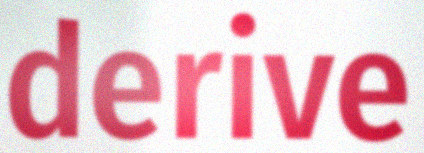
derive